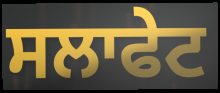
ਸਲਾਫੇਟ